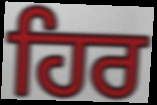
ਹਿਰ